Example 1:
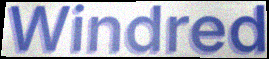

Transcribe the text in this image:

Windred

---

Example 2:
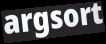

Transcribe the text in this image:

argsort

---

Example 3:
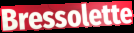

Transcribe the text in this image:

Bressolette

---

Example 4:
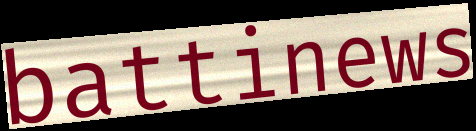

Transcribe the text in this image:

battinews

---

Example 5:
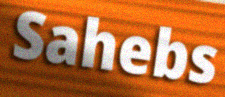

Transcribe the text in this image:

Sahebs